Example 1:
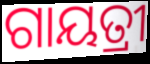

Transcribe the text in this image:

ଗାୟତ୍ରୀ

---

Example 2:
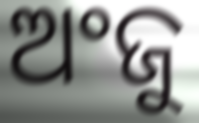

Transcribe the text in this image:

ଅଂଜୁ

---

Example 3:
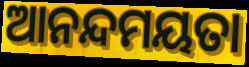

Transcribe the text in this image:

ଆନନ୍ଦମୟତା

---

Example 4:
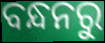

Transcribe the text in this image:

ବନ୍ଧନରୁ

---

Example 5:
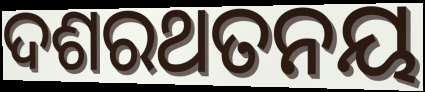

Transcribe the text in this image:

ଦଶରଥତନୟ